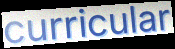
curricular